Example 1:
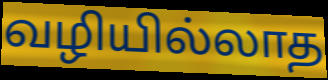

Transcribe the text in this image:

வழியில்லாத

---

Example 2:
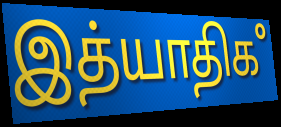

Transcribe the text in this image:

இத்யாதிகஂ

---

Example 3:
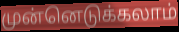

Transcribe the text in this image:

முன்னெடுக்கலாம்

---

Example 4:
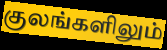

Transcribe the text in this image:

குலங்களிலும்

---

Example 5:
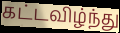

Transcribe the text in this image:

கட்டவிழ்ந்து